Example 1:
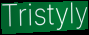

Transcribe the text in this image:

Tristyly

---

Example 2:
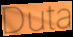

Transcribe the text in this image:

Duta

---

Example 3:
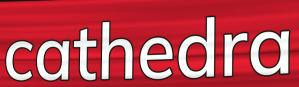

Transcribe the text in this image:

cathedra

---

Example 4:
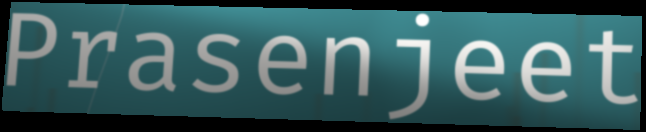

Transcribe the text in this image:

Prasenjeet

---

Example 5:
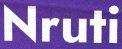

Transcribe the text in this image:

Nruti